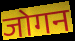
जोगन